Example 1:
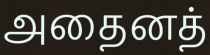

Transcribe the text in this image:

அதைனத்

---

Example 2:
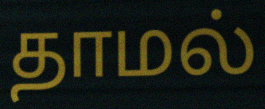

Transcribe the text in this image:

தாமல்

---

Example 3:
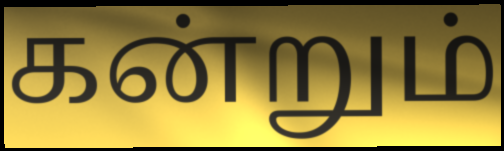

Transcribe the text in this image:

கன்றும்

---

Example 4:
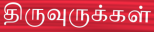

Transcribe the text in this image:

திருவுருக்கள்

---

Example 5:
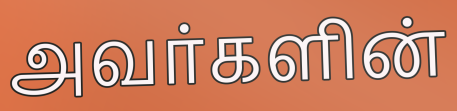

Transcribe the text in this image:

அவர்களின்